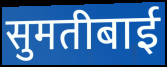
सुमतीबाई